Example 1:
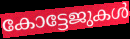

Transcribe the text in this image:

കോട്ടേജുകൾ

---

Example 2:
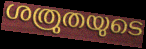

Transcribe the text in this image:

ശത്രുതയുടെ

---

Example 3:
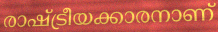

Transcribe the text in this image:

രാഷ്ട്രീയക്കാരനാണ്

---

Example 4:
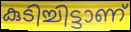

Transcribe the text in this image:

കുടിച്ചിട്ടാണ്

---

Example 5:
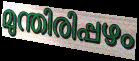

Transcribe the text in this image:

മുന്തിരിപ്പഴം